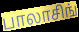
பாலாசிங்